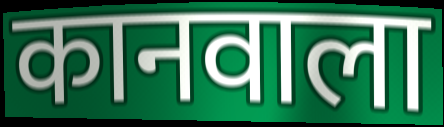
कानवाला